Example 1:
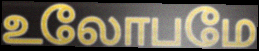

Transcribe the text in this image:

உலோபமே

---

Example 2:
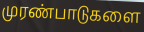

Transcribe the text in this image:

முரண்பாடுகளை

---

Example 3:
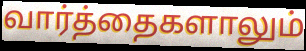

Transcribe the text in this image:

வார்த்தைகளாலும்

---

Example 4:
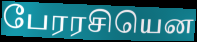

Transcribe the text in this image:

பேரரசியென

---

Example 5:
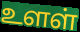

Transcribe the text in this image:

உளள்